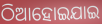
ଠିଆହୋଇଯାଇ